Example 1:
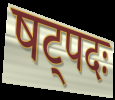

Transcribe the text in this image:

षट्पदः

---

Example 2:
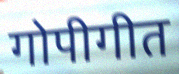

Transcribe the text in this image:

गोपीगीत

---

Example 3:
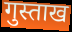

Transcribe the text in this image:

गुस्ताख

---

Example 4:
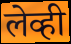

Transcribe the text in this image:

लेव्ही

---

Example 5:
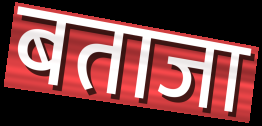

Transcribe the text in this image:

बताजा